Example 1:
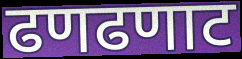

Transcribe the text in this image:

ढणढणाट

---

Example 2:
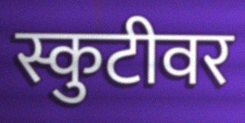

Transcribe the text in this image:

स्कुटीवर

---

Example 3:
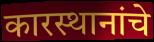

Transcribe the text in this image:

कारस्थानांचे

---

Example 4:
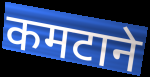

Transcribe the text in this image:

कमटाने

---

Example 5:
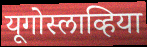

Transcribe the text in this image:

यूगोस्लाव्हिया